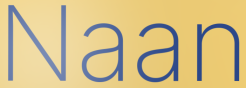
Naan